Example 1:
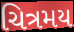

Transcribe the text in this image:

ચિત્રમય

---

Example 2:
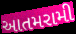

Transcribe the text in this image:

આતમરામી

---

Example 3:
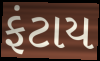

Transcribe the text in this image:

ફંટાય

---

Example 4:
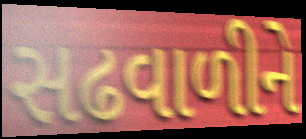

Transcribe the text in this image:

સઢવાળીને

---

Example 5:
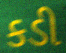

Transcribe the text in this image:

કડી